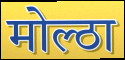
मोल्ठा